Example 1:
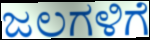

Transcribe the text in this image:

ಜಲಗಳಿಗೆ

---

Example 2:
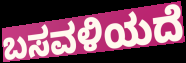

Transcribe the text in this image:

ಬಸವಳಿಯದೆ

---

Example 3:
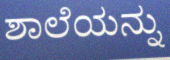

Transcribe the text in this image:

ಶಾಲೆಯನ್ನು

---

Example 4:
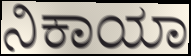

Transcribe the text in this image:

ನಿಕಾಯಾ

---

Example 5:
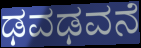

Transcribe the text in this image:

ಢವಢವನೆ